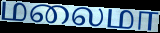
மலைமா